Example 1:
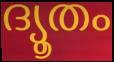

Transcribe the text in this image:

ദ്യൂതം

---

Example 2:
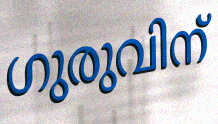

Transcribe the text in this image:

ഗുരുവിന്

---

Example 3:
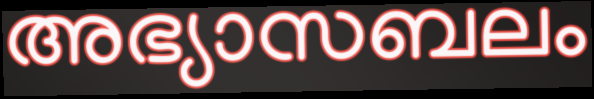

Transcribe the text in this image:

അഭ്യാസബലം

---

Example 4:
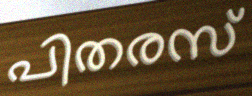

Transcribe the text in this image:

പിതരസ്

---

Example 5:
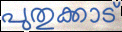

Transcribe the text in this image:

പുതുക്കാട്